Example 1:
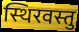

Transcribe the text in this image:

स्थिरवस्तु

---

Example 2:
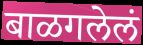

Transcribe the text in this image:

बाळगलेलं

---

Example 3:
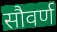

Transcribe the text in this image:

सौवर्ण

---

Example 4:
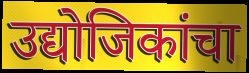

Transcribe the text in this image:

उद्योजिकांचा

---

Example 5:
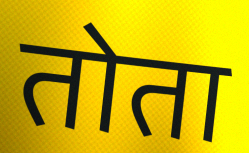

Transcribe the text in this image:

तोता